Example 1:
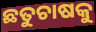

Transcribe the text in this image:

ଛତୁଚାଷକୁ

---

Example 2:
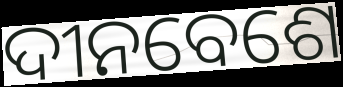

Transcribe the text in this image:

ଦୀନବେଶେ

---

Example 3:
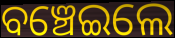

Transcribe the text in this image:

ବଞ୍ଚେଇଲେ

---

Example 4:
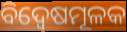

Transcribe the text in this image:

ବିଦ୍ୱେଷମୂଳକ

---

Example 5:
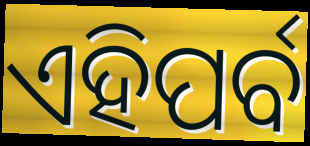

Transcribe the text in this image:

ଏହିପର୍ବ